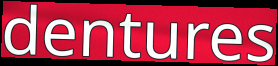
dentures